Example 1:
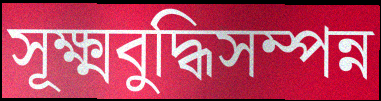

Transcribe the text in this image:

সূক্ষ্মবুদ্ধিসম্পন্ন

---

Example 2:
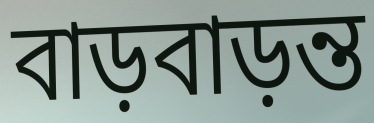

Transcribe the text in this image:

বাড়বাড়ন্ত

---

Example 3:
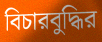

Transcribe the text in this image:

বিচারবুদ্ধির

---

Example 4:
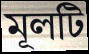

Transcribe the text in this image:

মূলটি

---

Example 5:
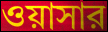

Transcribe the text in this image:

ওয়াসার